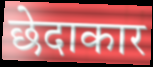
छेदाकार